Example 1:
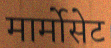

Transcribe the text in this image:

मार्मोसेट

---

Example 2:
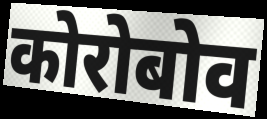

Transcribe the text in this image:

कोरोबोव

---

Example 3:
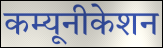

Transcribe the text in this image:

कम्यूनीकेशन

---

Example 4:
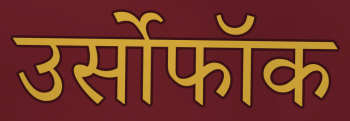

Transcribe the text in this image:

उर्सोफॉक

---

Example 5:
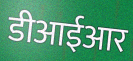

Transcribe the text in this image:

डीआईआर